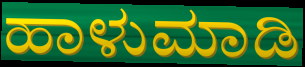
ಹಾಳುಮಾಡಿ